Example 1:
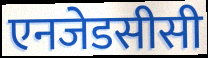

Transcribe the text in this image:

एनजेडसीसी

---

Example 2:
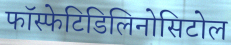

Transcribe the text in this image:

फॉस्फेटिडिलिनोसिटोल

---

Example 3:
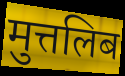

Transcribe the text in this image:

मुत्तलिब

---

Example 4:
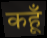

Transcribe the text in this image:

कहूँ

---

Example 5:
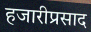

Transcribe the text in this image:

हजारीप्रसाद